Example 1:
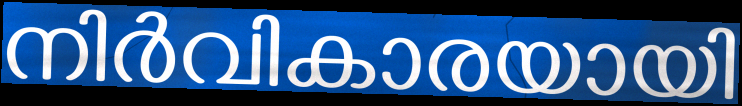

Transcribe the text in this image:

നിർവികാരയായി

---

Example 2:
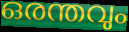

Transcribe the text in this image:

ഒരന്തവും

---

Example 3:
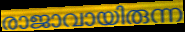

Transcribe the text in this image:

രാജാവായിരുന്ന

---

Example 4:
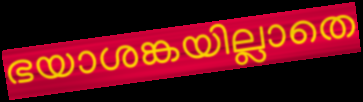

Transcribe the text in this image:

ഭയാശങ്കയില്ലാതെ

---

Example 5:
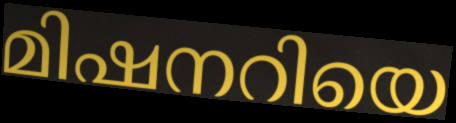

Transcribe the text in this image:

മിഷനറിയെ